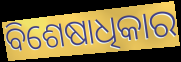
ବିଶେଷାଧିକାର